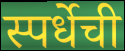
स्पर्धेची